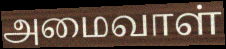
அமைவாள்